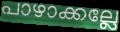
പാഴാക്കല്ലേ